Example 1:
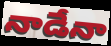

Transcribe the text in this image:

నాడేనా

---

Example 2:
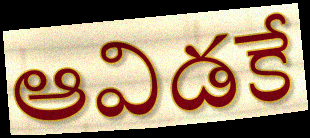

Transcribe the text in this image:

ఆవిడకే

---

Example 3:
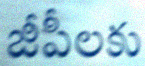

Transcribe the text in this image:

జీపీలకు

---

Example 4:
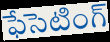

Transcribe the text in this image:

ఫేసెటింగ్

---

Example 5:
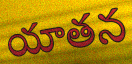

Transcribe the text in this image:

యాతన